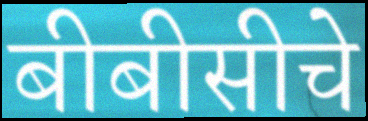
बीबीसीचे